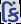
કિં